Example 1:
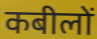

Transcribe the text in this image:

कबीलों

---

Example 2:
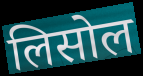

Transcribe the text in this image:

लिसोल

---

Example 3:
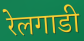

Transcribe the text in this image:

रेलगाडी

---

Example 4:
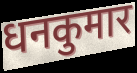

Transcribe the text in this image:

धनकुमार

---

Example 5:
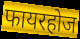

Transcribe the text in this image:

फायरहोज